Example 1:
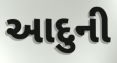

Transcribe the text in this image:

આદુની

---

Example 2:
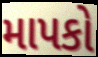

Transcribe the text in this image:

માપકો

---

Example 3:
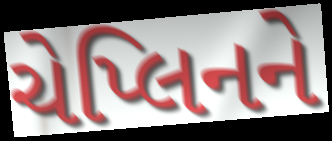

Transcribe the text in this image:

ચેપ્લિનને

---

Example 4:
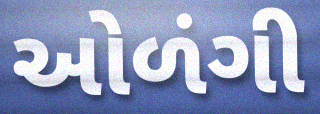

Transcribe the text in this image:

ઓળંગી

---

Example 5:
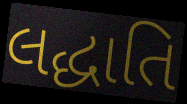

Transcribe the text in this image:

લદ્ધાતિ